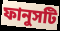
ফানুসটি